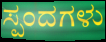
ಸ್ಪಂದಗಳು